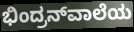
ಭಿಂದ್ರನ್‌ವಾಲೆಯ